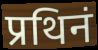
प्रथिनं